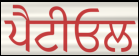
ਪੈਟੀਓਲ